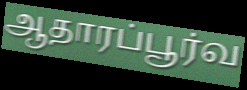
ஆதாரப்பூர்வ